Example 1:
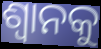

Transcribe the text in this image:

ଶ୍ଵାନକୁ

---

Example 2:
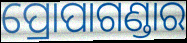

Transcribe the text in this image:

ପ୍ରୋପାଗଣ୍ଡାର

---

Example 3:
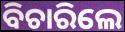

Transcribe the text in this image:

ବିଚାରିଲେ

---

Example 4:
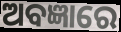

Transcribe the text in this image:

ଅବଜ୍ଞାରେ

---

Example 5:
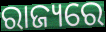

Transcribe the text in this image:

ରାଜ୍ଯରେ